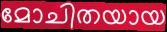
മോചിതയായ